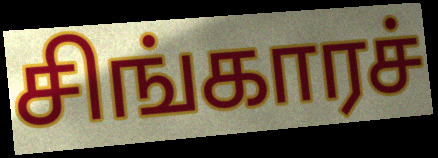
சிங்காரச்